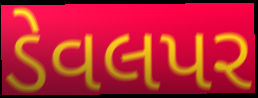
ડેવલપર